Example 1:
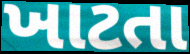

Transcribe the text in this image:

ખાટતા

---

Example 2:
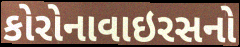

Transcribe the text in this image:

કોરોનાવાઇરસનો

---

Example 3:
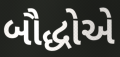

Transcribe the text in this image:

બૌદ્ધોએ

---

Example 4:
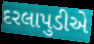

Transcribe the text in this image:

દરલાપુડીએ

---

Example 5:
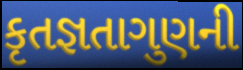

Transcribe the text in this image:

કૃતજ્ઞતાગુણની